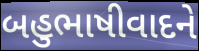
બહુભાષીવાદને